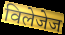
विलेजेज